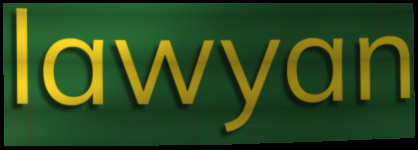
lawyan